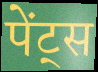
पेंट्स